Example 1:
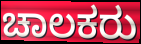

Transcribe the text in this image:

ಚಾಲಕರು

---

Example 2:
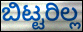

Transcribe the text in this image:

ಬಿಟ್ಟರಿಲ್ಲ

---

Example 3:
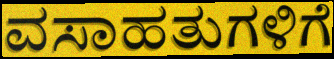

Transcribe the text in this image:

ವಸಾಹತುಗಳಿಗೆ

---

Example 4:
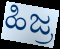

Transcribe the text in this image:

ಹಿಜ್ರ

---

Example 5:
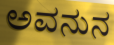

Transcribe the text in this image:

ಅವನುನ